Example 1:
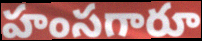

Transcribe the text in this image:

హంసగారూ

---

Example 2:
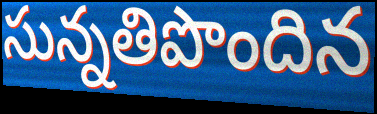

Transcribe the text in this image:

సున్నతిపొందిన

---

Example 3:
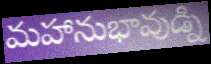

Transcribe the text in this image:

మహానుభావుడ్ని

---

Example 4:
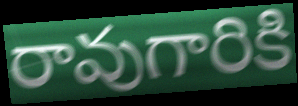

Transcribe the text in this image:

రావుగారికి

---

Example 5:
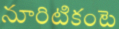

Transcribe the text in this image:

నూరిటికంటె